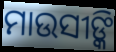
ମାଉସୀଙ୍କି